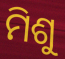
ମିଶୁ